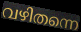
വഴിതന്നെ